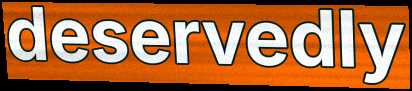
deservedly